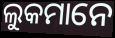
ଲୁକମାନେ